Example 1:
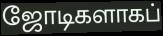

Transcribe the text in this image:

ஜோடிகளாகப்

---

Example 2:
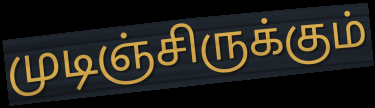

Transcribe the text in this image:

முடிஞ்சிருக்கும்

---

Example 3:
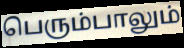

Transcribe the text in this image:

பெரும்பாலும்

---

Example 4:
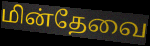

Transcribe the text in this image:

மின்தேவை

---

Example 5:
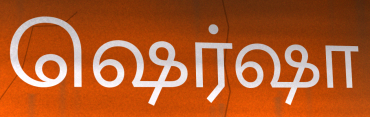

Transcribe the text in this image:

ஷெர்ஷா